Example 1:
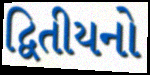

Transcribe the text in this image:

દ્વિતીયનો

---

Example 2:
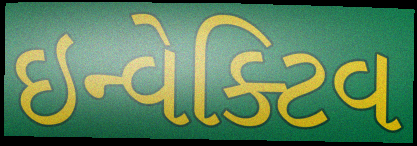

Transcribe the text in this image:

ઇન્વેક્ટિવ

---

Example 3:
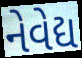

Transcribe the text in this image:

નેવેદ્ય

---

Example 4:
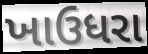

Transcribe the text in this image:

ખાઉધરા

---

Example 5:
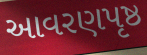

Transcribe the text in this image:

આવરણપૃષ્ઠ